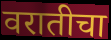
वरातीचा